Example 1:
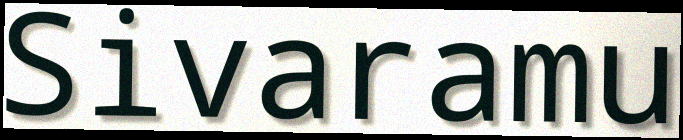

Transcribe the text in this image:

Sivaramu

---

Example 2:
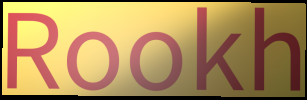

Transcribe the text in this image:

Rookh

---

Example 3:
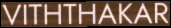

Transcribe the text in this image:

VITHTHAKAR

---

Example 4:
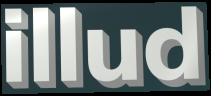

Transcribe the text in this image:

illud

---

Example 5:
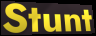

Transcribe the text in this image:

Stunt